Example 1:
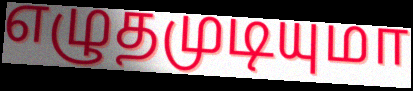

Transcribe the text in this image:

எழுதமுடியுமா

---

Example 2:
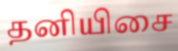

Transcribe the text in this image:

தனியிசை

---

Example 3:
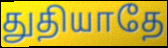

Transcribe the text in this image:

துதியாதே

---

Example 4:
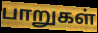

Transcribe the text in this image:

பாறுகள்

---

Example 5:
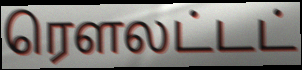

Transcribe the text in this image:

ரௌலட்டட்